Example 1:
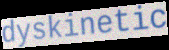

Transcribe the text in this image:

dyskinetic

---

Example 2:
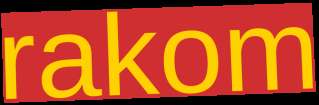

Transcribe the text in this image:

rakom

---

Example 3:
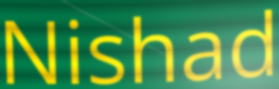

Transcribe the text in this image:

Nishad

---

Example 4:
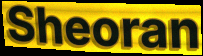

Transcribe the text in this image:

Sheoran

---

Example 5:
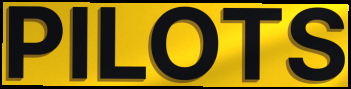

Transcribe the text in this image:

PILOTS